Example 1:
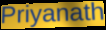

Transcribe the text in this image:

Priyanath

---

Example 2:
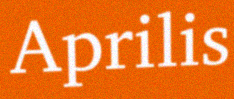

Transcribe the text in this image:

Aprilis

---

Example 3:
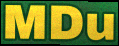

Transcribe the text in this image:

MDu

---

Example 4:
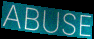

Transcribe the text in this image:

ABUSE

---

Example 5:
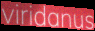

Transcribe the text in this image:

viridanus